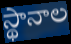
స్థానాల